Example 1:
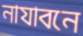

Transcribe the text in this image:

নাযাবনে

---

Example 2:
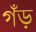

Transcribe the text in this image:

গঁড়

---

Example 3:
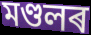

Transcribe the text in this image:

মণ্ডলৰ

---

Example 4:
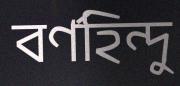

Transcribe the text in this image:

বৰ্ণহিন্দু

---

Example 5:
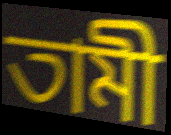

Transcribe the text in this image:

তামী